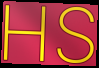
HS